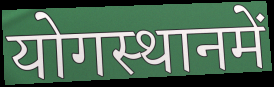
योगस्थानमें